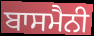
ਬਾਸਮੈਨੀ